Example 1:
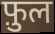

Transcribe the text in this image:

फ़ुल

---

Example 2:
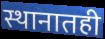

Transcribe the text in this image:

स्थानातही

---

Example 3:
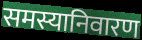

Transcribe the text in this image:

समस्यानिवारण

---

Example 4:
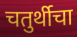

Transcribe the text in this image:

चतुर्थीचा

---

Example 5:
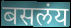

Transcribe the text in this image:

बसलंय